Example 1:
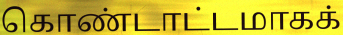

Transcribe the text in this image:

கொண்டாட்டமாகக்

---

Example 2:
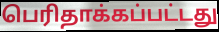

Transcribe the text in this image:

பெரிதாக்கப்பட்டது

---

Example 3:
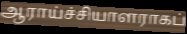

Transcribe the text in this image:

ஆராய்ச்சியாளராகப்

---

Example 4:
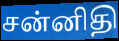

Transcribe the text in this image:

சன்னிதி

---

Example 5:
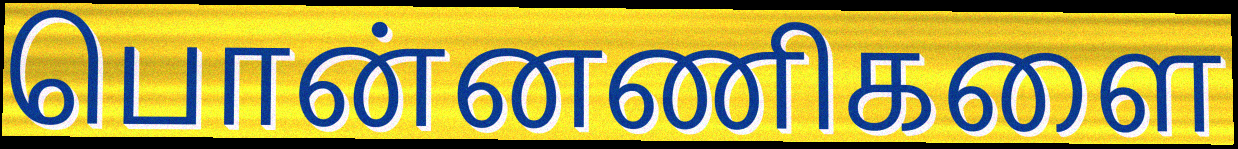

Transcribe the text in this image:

பொன்னணிகளை